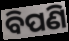
ବିପଣି